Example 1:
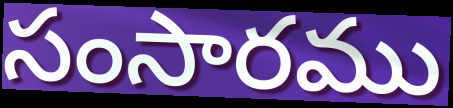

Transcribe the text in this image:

సంసారము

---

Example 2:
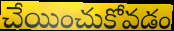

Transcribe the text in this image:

చేయించుకోవడం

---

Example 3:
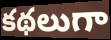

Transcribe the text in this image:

కథలుగా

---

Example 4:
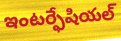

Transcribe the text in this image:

ఇంటర్ఫేషియల్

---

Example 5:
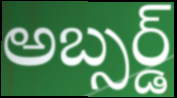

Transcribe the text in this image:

అబ్సర్డ్